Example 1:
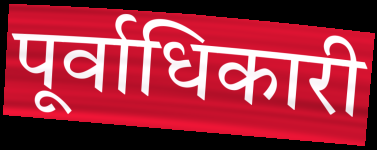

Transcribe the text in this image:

पूर्वाधिकारी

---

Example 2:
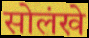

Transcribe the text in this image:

सोलंखे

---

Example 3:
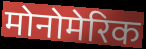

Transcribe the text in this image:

मोनोमेरिक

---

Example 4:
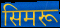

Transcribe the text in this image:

सिमरू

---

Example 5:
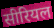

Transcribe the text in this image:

सीरियल